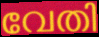
വേതി